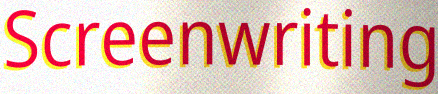
Screenwriting